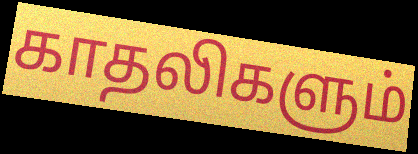
காதலிகளும்